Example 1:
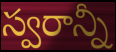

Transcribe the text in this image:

స్వరాన్నీ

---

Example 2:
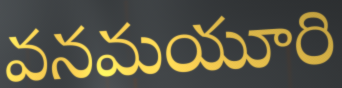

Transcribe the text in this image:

వనమయూరి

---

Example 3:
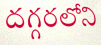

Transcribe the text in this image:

దగ్గరలోని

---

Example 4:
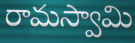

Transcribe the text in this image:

రామస్వామి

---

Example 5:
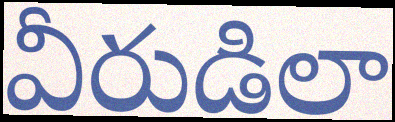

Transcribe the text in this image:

వీరుడిలా